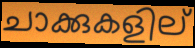
ചാക്കുകളില്